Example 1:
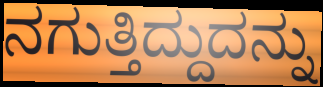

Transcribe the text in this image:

ನಗುತ್ತಿದ್ದುದನ್ನು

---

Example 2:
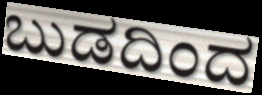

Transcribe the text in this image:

ಬುಡದಿಂದ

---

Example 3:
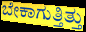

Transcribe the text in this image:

ಬೇಕಾಗುತ್ತಿತ್ತು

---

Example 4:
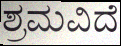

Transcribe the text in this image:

ಶ್ರಮವಿದೆ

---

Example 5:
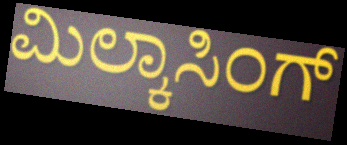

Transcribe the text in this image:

ಮಿಲ್ಕಾಸಿಂಗ್